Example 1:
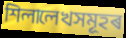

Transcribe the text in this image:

শিলালেখসমূহৰ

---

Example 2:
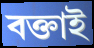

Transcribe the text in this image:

বক্তাই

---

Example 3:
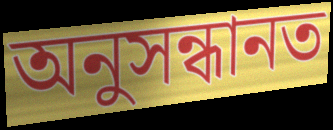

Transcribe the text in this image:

অনুসন্ধানত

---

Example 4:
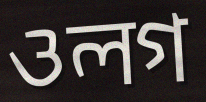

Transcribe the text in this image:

ওলগ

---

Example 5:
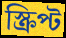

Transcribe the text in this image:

স্ক্ৰিপ্ট